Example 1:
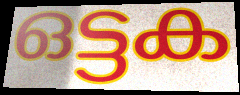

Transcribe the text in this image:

ഒട്ടക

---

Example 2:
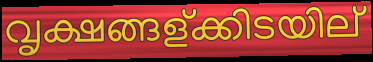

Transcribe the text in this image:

വൃക്ഷങ്ങള്ക്കിടയില്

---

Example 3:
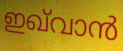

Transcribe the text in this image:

ഇഖ്‌വാൻ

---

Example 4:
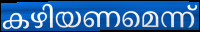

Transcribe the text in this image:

കഴിയണമെന്ന്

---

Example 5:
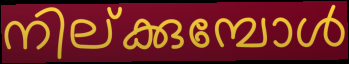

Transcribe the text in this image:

നില്ക്കുമ്പോൾ